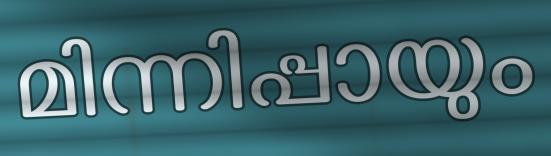
മിന്നിപ്പായും